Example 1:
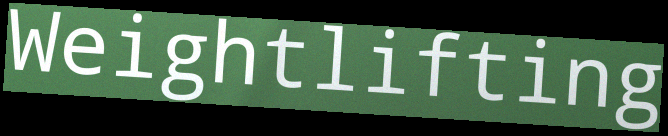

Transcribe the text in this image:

Weightlifting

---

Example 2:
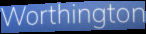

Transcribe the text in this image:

Worthington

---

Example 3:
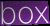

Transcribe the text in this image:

box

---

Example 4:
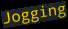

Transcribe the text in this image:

Jogging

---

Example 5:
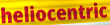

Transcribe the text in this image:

heliocentric